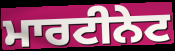
ਮਾਰਟੀਨੇਟ